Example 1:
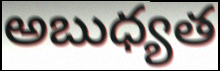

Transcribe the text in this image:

అబుధ్యత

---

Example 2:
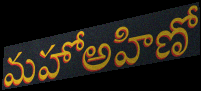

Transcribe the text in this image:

మహోఅహిణో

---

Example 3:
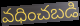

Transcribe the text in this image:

వధించబడి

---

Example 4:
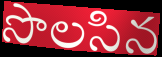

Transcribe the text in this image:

సొలసిన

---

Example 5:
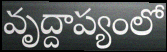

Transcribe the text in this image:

వృద్దాప్యంలో